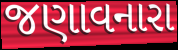
જણાવનારા